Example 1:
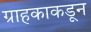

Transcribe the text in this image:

ग्राहकाकडून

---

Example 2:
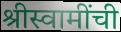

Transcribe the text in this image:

श्रीस्वामींची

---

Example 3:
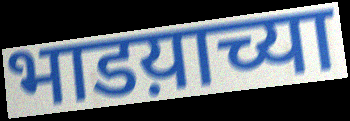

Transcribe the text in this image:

भाडय़ाच्या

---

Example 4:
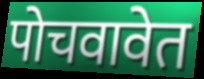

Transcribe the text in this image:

पोचवावेत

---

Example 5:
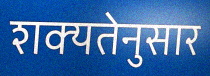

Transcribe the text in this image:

शक्यतेनुसार